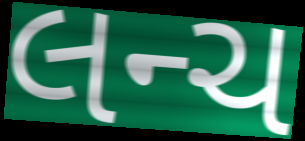
લન્ચ